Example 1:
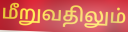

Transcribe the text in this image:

மீறுவதிலும்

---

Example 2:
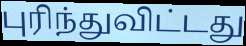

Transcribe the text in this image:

புரிந்துவிட்டது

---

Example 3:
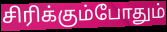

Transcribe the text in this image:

சிரிக்கும்போதும்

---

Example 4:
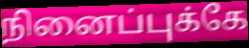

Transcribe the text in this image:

நினைப்புக்கே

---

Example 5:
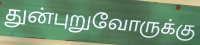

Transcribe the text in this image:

துன்புறுவோருக்கு